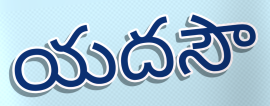
యదసౌ